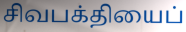
சிவபக்தியைப்